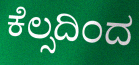
ಕೆಲ್ಸದಿಂದ